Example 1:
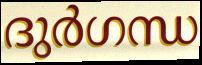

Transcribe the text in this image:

ദുർഗന്ധ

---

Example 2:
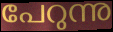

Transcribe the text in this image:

പേറുന്നു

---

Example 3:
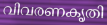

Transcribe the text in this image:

വിവരണകൃതി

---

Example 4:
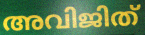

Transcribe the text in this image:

അവിജിത്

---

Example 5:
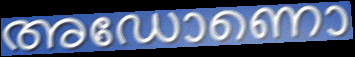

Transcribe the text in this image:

അഡോണൊ